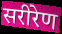
सरीरेण